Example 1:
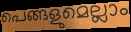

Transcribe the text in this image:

പെങ്ങളുമെല്ലാം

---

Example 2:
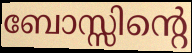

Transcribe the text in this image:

ബോസ്സിന്റെ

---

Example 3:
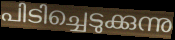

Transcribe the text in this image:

പിടിച്ചെടുക്കുന്നു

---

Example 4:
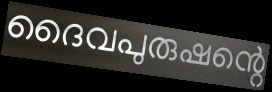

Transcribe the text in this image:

ദൈവപുരുഷന്റെ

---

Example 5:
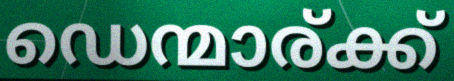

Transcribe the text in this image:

ഡെന്മാര്ക്ക്